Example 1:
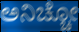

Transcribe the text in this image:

ಅನಿಚ್ಚೋ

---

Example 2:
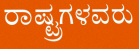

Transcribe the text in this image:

ರಾಷ್ಟ್ರಗಳವರು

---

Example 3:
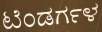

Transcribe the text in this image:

ಟೆಂಡರ್ಗಳ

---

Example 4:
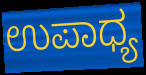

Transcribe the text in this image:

ಉಪಾಧ್ಯ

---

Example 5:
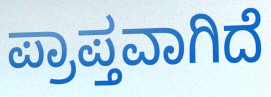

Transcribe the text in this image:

ಪ್ರಾಪ್ತವಾಗಿದೆ